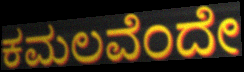
ಕಮಲವೆಂದೇ